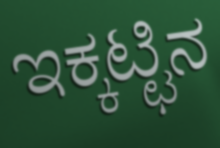
ಇಕ್ಕಟ್ಟಿನ